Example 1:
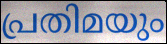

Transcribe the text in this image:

പ്രതിമയും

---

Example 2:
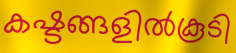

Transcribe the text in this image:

കഷ്ടങ്ങളിൽകൂടി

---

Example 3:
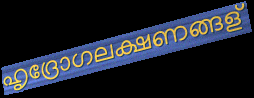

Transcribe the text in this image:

ഹൃദ്രോഗലക്ഷണങ്ങള്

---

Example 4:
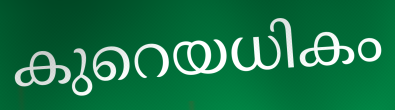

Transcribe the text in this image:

കുറെയധികം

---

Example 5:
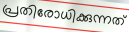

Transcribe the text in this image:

പ്രതിരോധിക്കുന്നത്